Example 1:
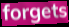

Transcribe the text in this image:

forgets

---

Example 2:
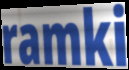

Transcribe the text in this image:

ramki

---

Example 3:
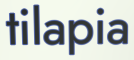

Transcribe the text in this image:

tilapia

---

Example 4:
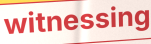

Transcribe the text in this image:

witnessing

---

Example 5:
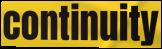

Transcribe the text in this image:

continuity